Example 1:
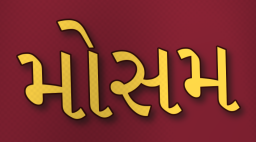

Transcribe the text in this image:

મોસમ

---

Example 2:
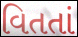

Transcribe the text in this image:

વિતતાં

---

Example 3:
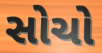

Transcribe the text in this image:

સોચો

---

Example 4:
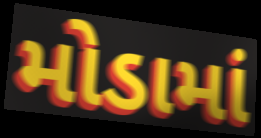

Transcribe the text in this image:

મોડામાં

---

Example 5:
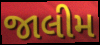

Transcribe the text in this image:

જાલીમ